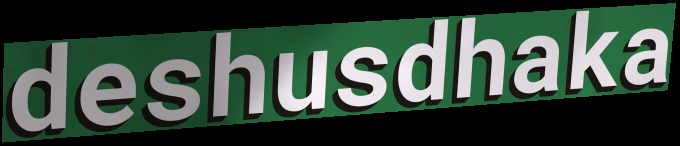
deshusdhaka